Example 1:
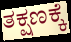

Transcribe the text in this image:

ತಕ್ಷಣಕ್ಕೆ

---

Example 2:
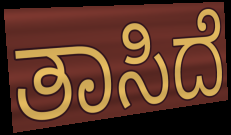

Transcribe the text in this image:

ತಾಸಿದೆ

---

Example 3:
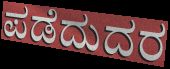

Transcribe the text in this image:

ಪಡೆದುದರ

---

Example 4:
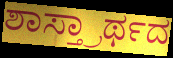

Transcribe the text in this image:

ಶಾಸ್ತ್ರಾರ್ಥದ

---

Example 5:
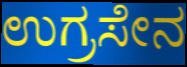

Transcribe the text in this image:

ಉಗ್ರಸೇನ